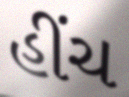
હીંચ